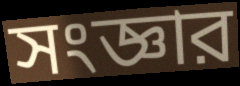
সংজ্ঞার